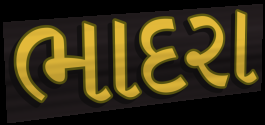
ભાદરા